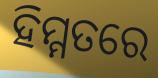
ହିମ୍ମତରେ